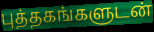
புத்தகங்களுடன்